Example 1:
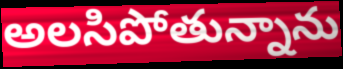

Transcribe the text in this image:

అలసిపోతున్నాను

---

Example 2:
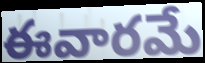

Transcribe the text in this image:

ఈవారమే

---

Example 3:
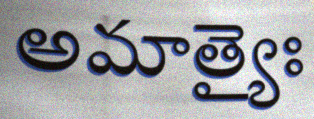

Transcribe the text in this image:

అమాత్యైః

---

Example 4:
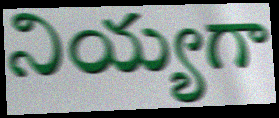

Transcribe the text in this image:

నియ్యగా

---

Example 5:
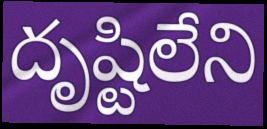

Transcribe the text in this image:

దృష్టిలేని